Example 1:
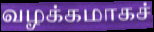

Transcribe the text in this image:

வழக்கமாகச்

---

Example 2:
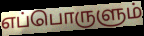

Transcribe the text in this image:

எப்பொருளும்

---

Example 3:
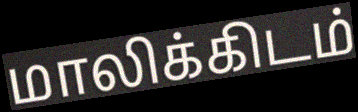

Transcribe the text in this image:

மாலிக்கிடம்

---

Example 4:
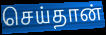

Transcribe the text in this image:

செய்தான்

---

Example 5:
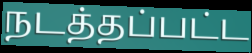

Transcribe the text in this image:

நடத்தப்பட்ட